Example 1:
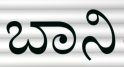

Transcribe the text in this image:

ಬಾನಿ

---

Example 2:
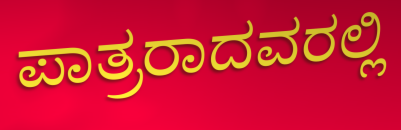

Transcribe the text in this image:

ಪಾತ್ರರಾದವರಲ್ಲಿ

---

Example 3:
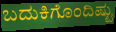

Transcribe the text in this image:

ಬದುಕಿಗೊಂದಿಷ್ಟು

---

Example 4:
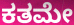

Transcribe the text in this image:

ಕತಮೇ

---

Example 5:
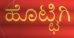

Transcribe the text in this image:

ಹೊಟ್ಟಿಗಿ